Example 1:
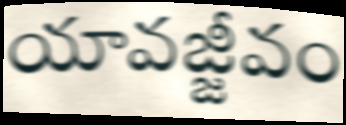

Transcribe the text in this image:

యావజ్జీవం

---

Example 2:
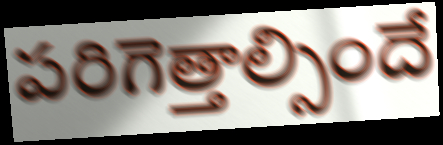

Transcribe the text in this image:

పరిగెత్తాల్సిందే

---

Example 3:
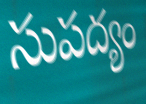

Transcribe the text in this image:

సుపద్యం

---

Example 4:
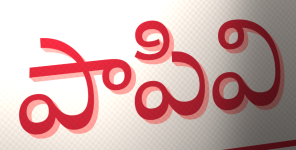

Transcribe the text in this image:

పాపివి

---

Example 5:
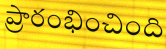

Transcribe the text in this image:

ప్రారంభించింది